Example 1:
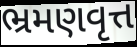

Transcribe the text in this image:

ભ્રમણવૃત્ત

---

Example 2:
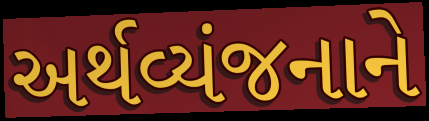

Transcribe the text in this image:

અર્થવ્યંજનાને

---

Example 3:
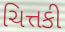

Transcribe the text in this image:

ચિત્તકી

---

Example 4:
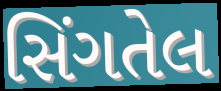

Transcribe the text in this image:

સિંગતેલ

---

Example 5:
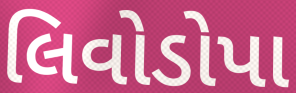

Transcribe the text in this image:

લિવોડોપા